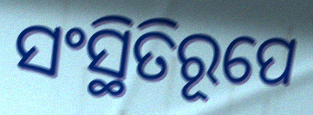
ସଂସ୍ଥିତିରୂପେ